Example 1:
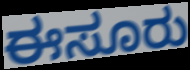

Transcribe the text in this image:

ಈಸೂರು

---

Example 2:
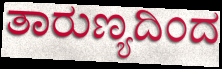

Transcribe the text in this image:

ತಾರುಣ್ಯದಿಂದ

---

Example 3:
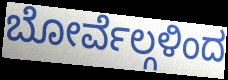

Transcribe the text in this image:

ಬೋರ್ವೆಲ್ಗಳಿಂದ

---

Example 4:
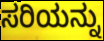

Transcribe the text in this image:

ಸರಿಯನ್ನು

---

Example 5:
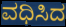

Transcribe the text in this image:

ವಧಿಸಿದ